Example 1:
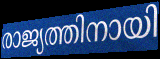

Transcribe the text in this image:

രാജ്യത്തിനായി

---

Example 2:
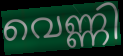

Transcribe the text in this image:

വെണ്ണി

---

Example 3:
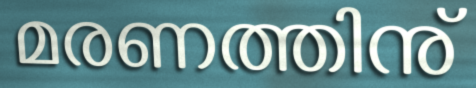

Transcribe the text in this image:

മരണത്തിനു്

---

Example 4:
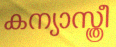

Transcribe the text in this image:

കന്യാസ്ത്രീ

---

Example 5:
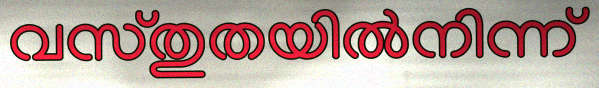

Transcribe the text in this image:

വസ്തുതയിൽനിന്ന്